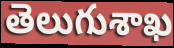
తెలుగుశాఖ